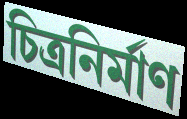
চিত্রনির্মাণ